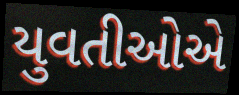
યુવતીઓએ